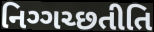
નિગ્ગચ્છતીતિ